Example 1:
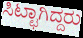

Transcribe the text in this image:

ಸಿಟ್ಟಾಗಿದ್ದರು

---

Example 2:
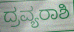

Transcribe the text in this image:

ದ್ರವ್ಯರಾಶಿ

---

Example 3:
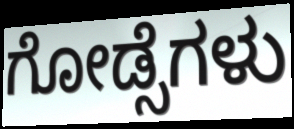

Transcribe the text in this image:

ಗೋಡ್ಸೆಗಳು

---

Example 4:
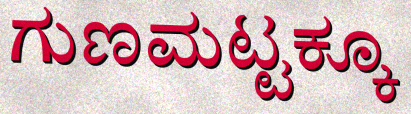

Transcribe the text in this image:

ಗುಣಮಟ್ಟಕ್ಕೂ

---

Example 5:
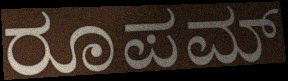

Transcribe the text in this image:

ರೂಪಮ್